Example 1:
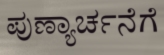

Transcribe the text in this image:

ಪುಣ್ಯಾರ್ಚನೆಗೆ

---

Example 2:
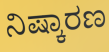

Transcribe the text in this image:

ನಿಷ್ಕಾರಣ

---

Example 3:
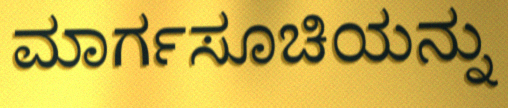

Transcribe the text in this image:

ಮಾರ್ಗಸೂಚಿಯನ್ನು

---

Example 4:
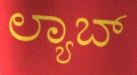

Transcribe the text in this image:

ಲ್ಯಾಬ್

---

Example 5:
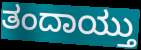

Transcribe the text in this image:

ತಂದಾಯ್ತು